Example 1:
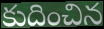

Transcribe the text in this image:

కుదించిన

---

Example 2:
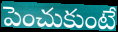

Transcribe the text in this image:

పెంచుకుంటే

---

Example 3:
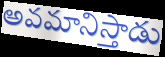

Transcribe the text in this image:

అవమానిస్తాడు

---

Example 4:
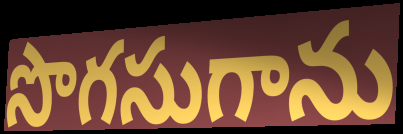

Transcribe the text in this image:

సొగసుగాను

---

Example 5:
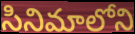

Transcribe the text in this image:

సినిమాలోని